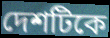
দেশটিকে